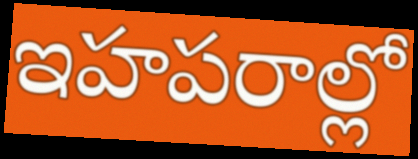
ఇహపరాల్లో